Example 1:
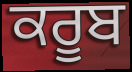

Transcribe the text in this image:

ਕਰੂਬ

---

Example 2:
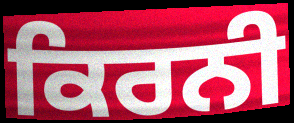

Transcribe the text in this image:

ਕਿਰਨੀ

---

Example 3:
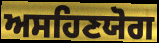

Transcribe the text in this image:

ਅਸਹਿਣਯੋਗ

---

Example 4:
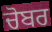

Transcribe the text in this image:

ਚੋਬਰ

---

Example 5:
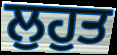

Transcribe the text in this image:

ਲੁਹੁਤ